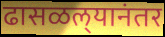
ढासळल्यानंतर